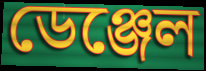
ডেঞ্জেল